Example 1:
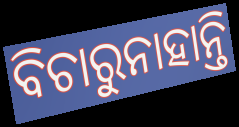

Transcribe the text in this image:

ବିଚାରୁନାହାନ୍ତି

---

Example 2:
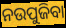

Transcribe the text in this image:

ନଉପୁଜିବା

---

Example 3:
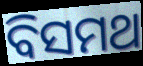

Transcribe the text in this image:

ବିସମଥ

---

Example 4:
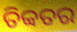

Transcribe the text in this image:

ତିବ୍ବତର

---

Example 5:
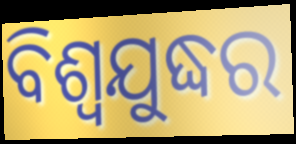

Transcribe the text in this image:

ବିଶ୍ୱଯୁଦ୍ଧର